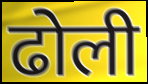
ढोली